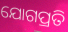
ଯୋଗପ୍ରତି